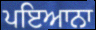
ਪਇਆਨਾ